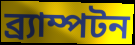
ব্র্যাম্পটন